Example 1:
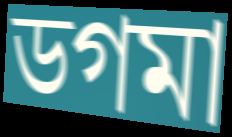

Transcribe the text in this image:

ডগমা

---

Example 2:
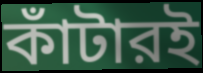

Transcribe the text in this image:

কাঁটারই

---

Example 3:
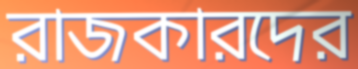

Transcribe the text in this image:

রাজকারদের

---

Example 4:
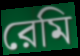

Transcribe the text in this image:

রেমি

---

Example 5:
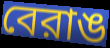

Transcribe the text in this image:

বেরাঙ